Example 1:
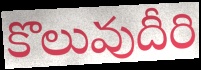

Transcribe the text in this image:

కొలువుదీరి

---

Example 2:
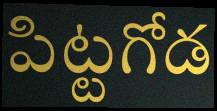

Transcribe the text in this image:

పిట్టగోడ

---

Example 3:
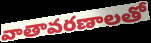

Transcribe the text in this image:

వాతావరణాలతో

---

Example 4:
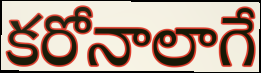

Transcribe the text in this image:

కరోనాలాగే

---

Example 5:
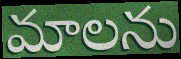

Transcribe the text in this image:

మాలను